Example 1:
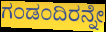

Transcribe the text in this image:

ಗಂಡಂದಿರನ್ನೇ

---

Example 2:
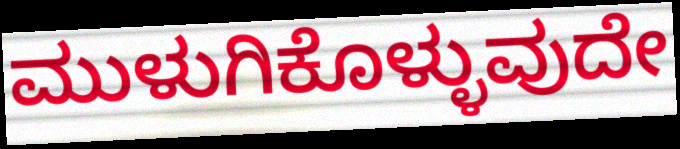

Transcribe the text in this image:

ಮುಳುಗಿಕೊಳ್ಳುವುದೇ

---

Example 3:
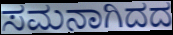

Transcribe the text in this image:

ಸಮನಾಗಿದದ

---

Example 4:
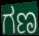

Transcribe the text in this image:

ಗಣ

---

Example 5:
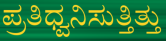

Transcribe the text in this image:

ಪ್ರತಿಧ್ವನಿಸುತ್ತಿತ್ತು